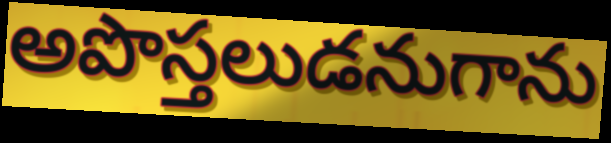
అపొస్తలుడనుగాను